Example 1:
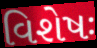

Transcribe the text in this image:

વિશેષઃ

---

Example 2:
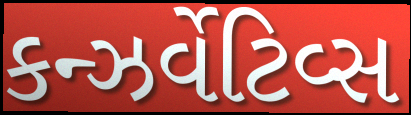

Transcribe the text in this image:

કન્ઝર્વેટિવ્સ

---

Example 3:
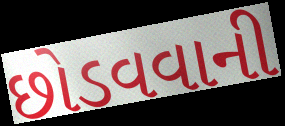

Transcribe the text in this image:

છોડવવાની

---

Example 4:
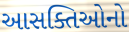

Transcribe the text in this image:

આસક્તિઓનો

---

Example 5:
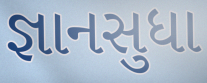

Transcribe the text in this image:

જ્ઞાનસુધા